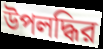
উপলদ্ধির